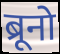
ब्रूनो